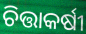
ଚିତ୍ତାକର୍ଷୀ